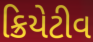
ક્રિયેટીવ